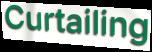
Curtailing